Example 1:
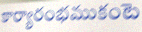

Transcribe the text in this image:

కార్యారంభముకంటె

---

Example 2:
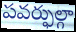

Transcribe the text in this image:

పవర్ఫుల్గా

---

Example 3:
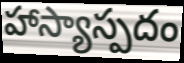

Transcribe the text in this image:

హాస్యాస్పదం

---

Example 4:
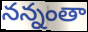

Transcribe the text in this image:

నన్నంతా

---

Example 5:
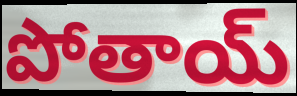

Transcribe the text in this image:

పోతాయ్